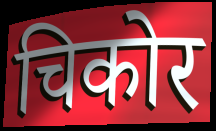
चिकोर